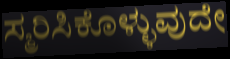
ಸ್ಮರಿಸಿಕೊಳ್ಳುವುದೇ